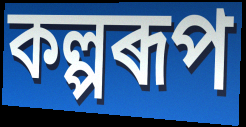
কল্পৰূপ